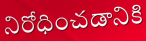
నిరోధించడానికి